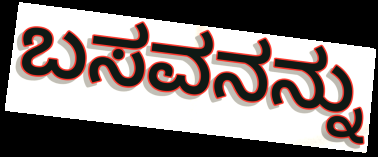
ಬಸವನನ್ನು